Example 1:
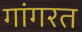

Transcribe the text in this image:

गांगरत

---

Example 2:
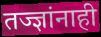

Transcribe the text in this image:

तज्ज्ञांनाही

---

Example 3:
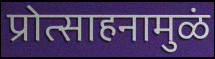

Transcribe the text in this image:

प्रोत्साहनामुळं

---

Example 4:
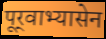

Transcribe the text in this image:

पूर्वाभ्यासेन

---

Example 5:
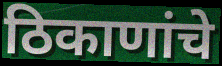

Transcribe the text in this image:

ठिकाणांचे